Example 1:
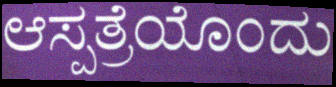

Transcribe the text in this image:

ಆಸ್ಪತ್ರೆಯೊಂದು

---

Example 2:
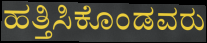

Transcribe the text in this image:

ಹತ್ತಿಸಿಕೊಂಡವರು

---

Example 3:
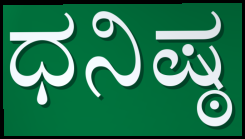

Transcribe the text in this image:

ಧನಿಷ್ಠ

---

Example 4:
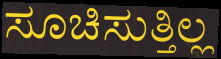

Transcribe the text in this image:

ಸೂಚಿಸುತ್ತಿಲ್ಲ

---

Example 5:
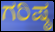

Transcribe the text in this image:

ಗರಿಷ್ಠ